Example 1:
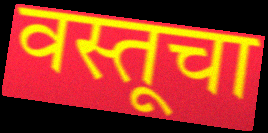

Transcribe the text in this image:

वस्तूचा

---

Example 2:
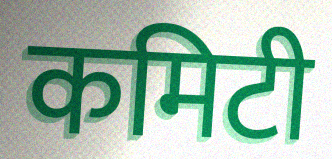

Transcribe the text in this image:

कमिटी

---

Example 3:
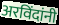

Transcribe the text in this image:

अरविंदांनी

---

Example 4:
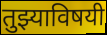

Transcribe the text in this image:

तुझ्याविषयी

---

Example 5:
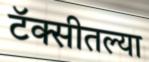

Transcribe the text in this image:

टॅक्सीतल्या